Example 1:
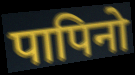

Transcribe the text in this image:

पापिनो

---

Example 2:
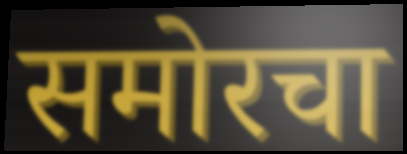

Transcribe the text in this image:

समोरचा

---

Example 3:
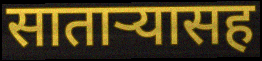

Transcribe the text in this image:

साताऱ्यासह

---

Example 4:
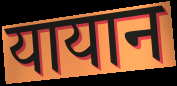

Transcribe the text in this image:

यायान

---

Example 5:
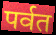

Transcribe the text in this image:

पर्वत